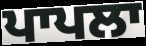
ਪਾਪਲਾ